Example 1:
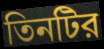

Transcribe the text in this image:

তিনটির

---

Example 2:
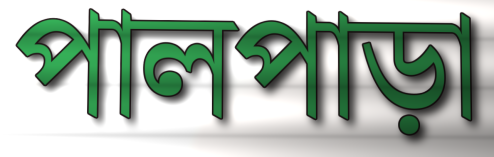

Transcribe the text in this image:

পালপাড়া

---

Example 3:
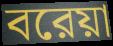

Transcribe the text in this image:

বরেয়া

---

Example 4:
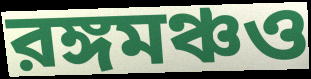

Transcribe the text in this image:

রঙ্গমঞ্চও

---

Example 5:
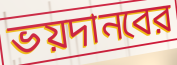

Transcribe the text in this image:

ভয়দানবের